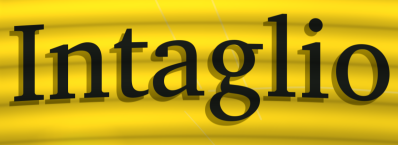
Intaglio